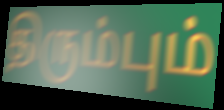
திரும்பும்